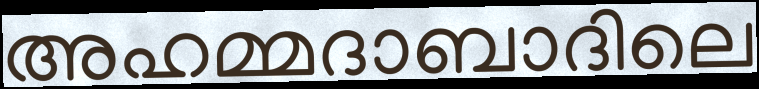
അഹമ്മദാബാദിലെ